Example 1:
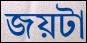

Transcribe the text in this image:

জয়টা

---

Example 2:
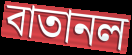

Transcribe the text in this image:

বাতানল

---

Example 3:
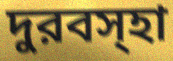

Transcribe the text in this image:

দুরবস্হা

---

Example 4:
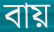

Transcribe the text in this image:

বায়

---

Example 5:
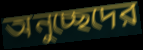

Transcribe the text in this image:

অনুচ্ছেদের